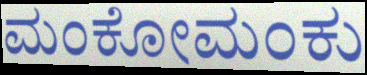
ಮಂಕೋಮಂಕು